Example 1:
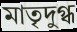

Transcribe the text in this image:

মাতৃদুগ্ধ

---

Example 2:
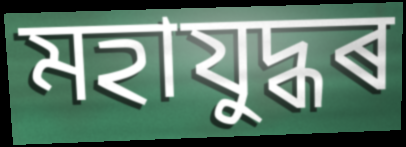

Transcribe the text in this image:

মহাযুদ্ধৰ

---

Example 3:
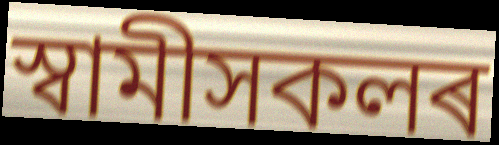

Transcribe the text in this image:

স্বামীসকলৰ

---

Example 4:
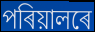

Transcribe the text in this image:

পৰিয়ালৰে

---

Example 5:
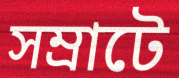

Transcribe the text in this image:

সম্ৰাটে